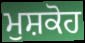
ਮੁਸ਼ਕੋਹ